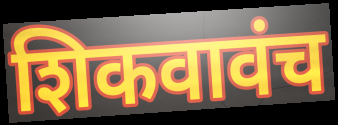
शिकवावंच